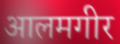
आलमगीर